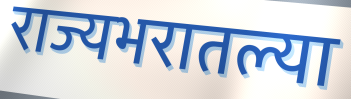
राज्यभरातल्या